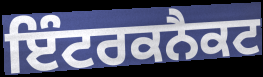
ਇੰਟਰਕਨੈਕਟ